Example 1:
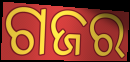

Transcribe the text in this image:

ଗଜର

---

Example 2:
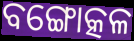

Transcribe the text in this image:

ବଙ୍ଗୋତ୍କଳ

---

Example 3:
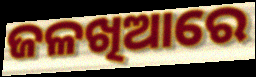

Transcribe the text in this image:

ଜଳଖିଆରେ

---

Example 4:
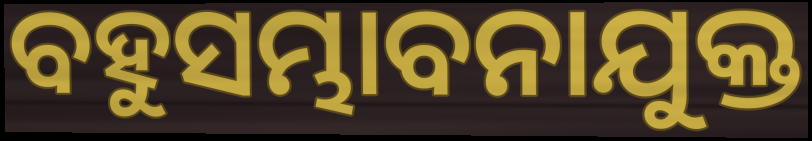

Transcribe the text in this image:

ବହୁସମ୍ଭାବନାଯୁକ୍ତ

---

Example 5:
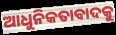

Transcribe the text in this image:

ଆଧୁନିକତାବାଦକୁ